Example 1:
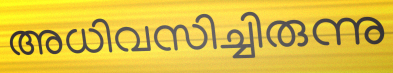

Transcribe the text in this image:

അധിവസിച്ചിരുന്നു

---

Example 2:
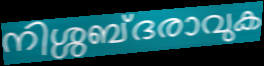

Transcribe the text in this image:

നിശ്ശബ്ദരാവുക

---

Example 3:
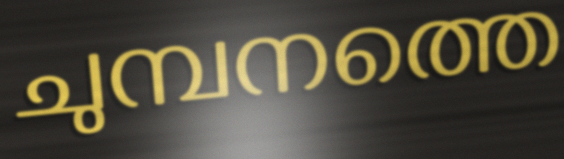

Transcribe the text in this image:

ചുമ്പനത്തെ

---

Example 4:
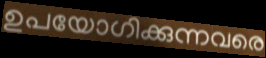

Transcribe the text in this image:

ഉപയോഗിക്കുന്നവരെ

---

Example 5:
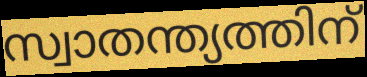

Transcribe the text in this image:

സ്വാതന്ത്യത്തിന്